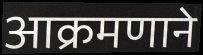
आक्रमणाने